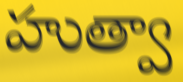
హుత్వా